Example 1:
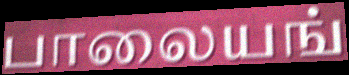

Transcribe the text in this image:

பாலையங்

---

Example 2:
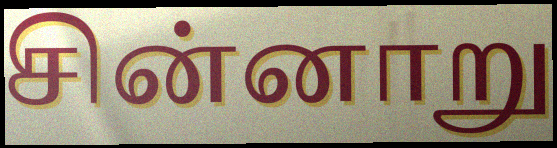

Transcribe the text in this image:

சின்னாறு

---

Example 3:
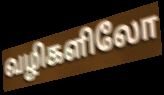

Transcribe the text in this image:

வழிகளிலோ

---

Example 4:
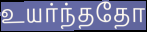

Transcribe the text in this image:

உயர்ந்ததோ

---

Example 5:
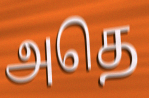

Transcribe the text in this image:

அதெ